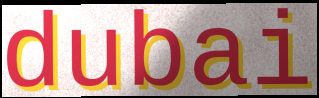
dubai